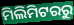
ମିଲିମିଟରରୁ